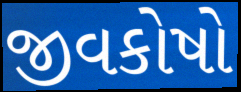
જીવકોષો